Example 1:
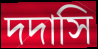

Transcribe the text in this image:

দদাসি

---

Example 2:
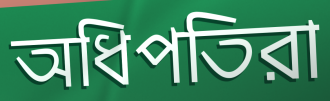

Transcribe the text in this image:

অধিপতিরা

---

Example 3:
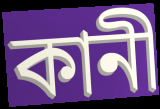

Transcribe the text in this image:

কানী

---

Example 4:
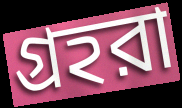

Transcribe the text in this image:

গ্রহরা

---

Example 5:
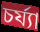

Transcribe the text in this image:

চর্য্যা